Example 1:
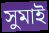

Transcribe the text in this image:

সুমাই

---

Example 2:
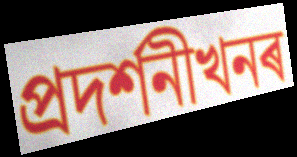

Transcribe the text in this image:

প্ৰদৰ্শনীখনৰ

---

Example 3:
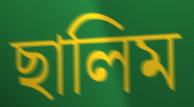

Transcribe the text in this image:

ছালিম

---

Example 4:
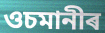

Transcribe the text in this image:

ওচমানীৰ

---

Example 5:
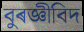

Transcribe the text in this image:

বুৰজ্ঞীবিদ